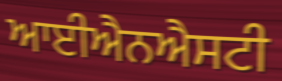
ਆਈਐਨਐਸਟੀ